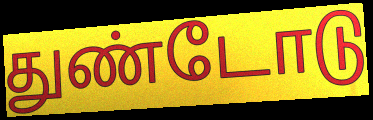
துண்டோடு